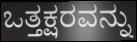
ಒತ್ತಕ್ಷರವನ್ನು